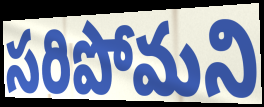
సరిపోమని